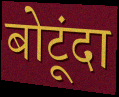
बोटूंदा